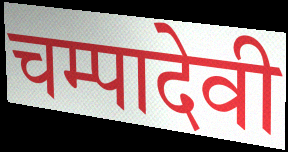
चम्पादेवी